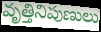
వృత్తినిపుణులు